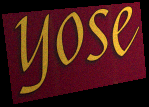
yose